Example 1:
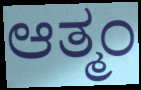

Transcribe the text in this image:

ಆತ್ಮಂ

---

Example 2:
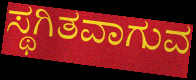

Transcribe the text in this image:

ಸ್ಥಗಿತವಾಗುವ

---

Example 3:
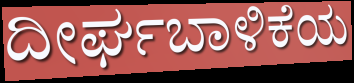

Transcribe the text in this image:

ದೀರ್ಘಬಾಳಿಕೆಯ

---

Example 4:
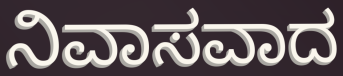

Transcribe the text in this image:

ನಿವಾಸವಾದ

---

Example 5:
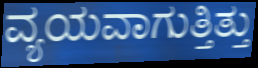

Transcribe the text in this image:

ವ್ಯಯವಾಗುತ್ತಿತ್ತು